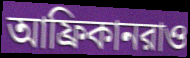
আফ্রিকানরাও